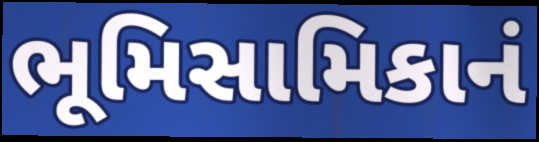
ભૂમિસામિકાનં